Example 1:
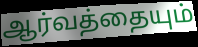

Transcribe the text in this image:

ஆர்வத்தையும்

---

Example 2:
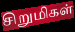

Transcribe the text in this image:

சிறுமிகள்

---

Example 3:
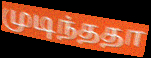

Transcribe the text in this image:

முடிந்ததா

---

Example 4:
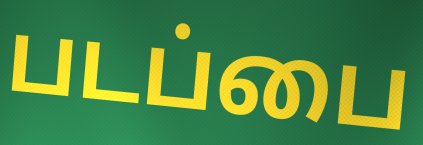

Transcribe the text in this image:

படப்பை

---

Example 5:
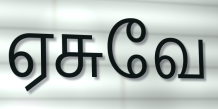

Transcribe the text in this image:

ஏசுவே